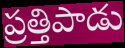
ప్రత్తిపాడు